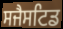
ਸਜੈਸਟਿਡ